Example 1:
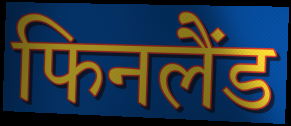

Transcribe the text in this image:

फिनलैंड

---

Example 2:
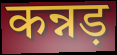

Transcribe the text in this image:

कन्नड़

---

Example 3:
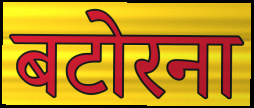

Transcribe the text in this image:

बटोरना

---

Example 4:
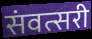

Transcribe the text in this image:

संवत्सरी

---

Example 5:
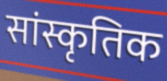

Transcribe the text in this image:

सांस्‍कृतिक